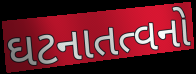
ઘટનાતત્વનો